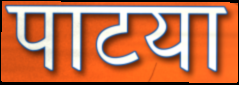
पाटया